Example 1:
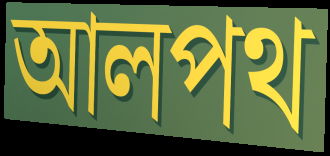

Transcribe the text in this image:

আলপথ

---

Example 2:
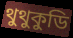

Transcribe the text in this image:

থুথুকুডি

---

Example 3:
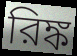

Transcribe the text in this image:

রিঙ্ক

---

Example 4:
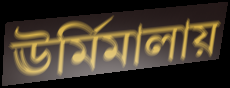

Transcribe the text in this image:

ঊর্মিমালায়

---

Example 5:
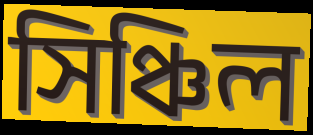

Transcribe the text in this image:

সিঞ্চিল